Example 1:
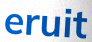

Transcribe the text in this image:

eruit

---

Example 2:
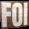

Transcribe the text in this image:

FOI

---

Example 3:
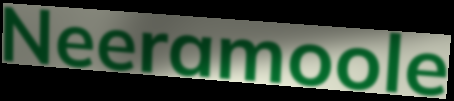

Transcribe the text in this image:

Neeramoole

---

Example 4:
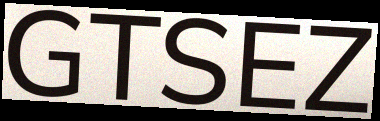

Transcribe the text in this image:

GTSEZ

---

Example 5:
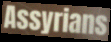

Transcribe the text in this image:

Assyrians